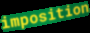
imposition